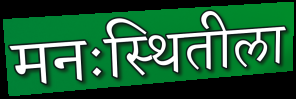
मनःस्थितीला